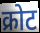
क्रोट